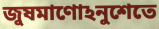
জুষমাণোঽনুশেতে